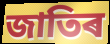
জাতিৰ